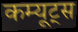
कम्यूट्स